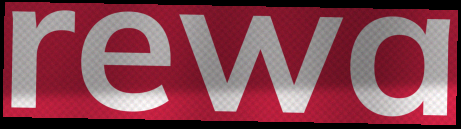
rewa